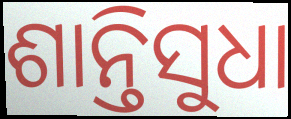
ଶାନ୍ତିସୁଧା